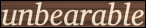
unbearable